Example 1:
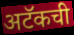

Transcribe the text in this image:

अटॅकची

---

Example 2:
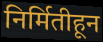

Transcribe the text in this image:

निर्मितीहून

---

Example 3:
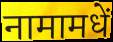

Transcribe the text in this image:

नामामधें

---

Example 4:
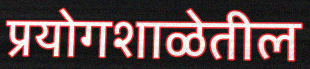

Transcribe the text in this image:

प्रयोगशाळेतील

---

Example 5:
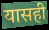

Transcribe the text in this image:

यासही